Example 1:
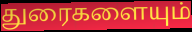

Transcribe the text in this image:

துரைகளையும்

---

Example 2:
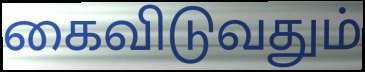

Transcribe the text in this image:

கைவிடுவதும்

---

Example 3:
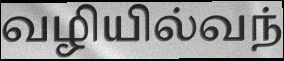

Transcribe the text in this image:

வழியில்வந்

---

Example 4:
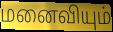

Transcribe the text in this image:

மனைவியும்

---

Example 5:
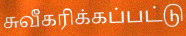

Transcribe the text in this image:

சுவீகரிக்கப்பட்டு